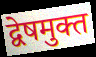
द्वेषमुक्त